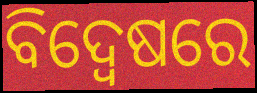
ବିଦ୍ୱେଷରେ